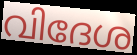
വിദേശ